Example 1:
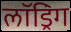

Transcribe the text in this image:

लॉड्रिंग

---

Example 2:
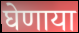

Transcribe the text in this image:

घेणाया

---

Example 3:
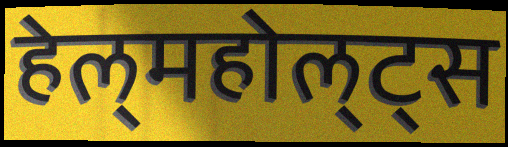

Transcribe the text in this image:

हेल्महोल्ट्स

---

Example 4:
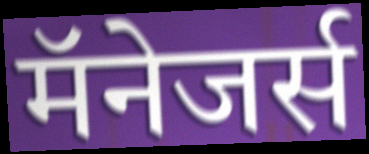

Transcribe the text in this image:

मॅनेजर्स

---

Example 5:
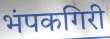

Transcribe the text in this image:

भंपकगिरी